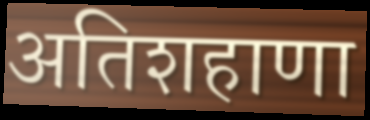
अतिशहाणा